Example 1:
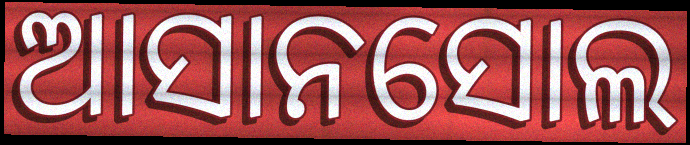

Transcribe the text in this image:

ଆସାନସୋଲ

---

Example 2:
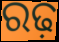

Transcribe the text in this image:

ରଢ଼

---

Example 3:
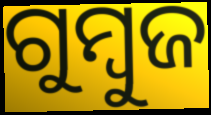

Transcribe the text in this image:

ଗୁମ୍ବୁଜ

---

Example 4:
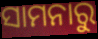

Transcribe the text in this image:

ସାମନାରୁ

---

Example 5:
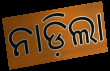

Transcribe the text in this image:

ନାଡ଼ିଲା